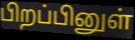
பிறப்பினுள்